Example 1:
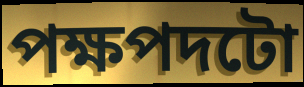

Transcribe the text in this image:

পক্ষপদটো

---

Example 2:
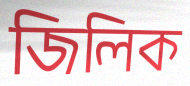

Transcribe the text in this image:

জিলিক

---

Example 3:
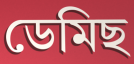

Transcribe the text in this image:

ডেমিছ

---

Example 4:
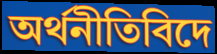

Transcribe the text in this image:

অৰ্থনীতিবিদে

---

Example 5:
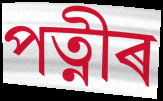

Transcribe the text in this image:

পত্নীৰ